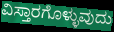
ವಿಸ್ತಾರಗೊಳ್ಳುವುದು